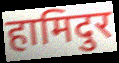
हामिदुर